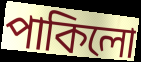
পাকিলো